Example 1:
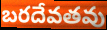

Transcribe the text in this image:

బరదేవతవు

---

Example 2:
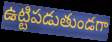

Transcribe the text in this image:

ఉట్టిపడుతుండగా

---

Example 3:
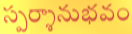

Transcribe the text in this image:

స్పర్శానుభవం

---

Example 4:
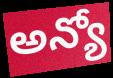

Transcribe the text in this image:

అన్యో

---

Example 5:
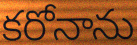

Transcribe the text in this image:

కరోనాను